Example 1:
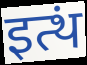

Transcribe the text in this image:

इत्थं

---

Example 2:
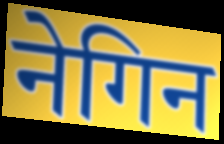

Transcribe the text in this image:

नेगिन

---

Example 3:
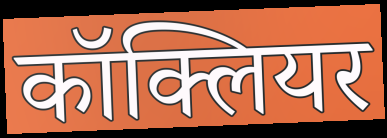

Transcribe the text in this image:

कॉक्लियर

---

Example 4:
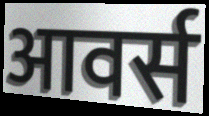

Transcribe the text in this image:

आवर्स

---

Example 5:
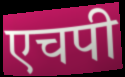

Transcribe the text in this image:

एचपी